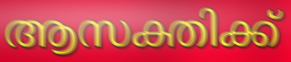
ആസക്തിക്ക്